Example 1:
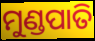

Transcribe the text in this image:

ମୁଣ୍ଡପାତି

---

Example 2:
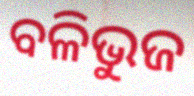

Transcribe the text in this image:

ବଳିଭୁଜ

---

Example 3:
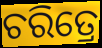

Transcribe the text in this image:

ଚରିତ୍ରେ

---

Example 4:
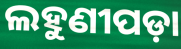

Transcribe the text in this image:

ଲହୁଣୀପଡ଼ା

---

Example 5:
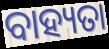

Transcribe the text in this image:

ବାହ୍ୟତା